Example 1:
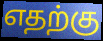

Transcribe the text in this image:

எதற்கு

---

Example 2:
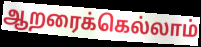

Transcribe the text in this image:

ஆறரைக்கெல்லாம்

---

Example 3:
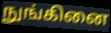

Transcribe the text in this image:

நுங்கினை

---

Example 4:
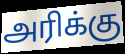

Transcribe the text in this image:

அரிக்கு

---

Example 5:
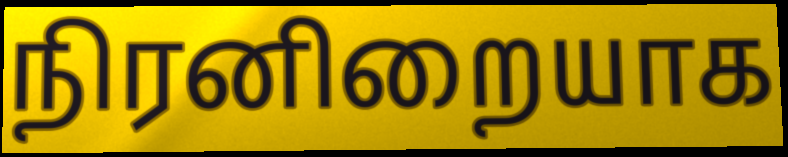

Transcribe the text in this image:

நிரனிறையாக